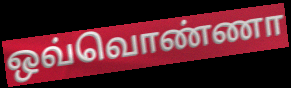
ஒவ்வொண்ணா